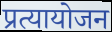
प्रत्यायोजन